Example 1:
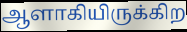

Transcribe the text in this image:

ஆளாகியிருக்கிற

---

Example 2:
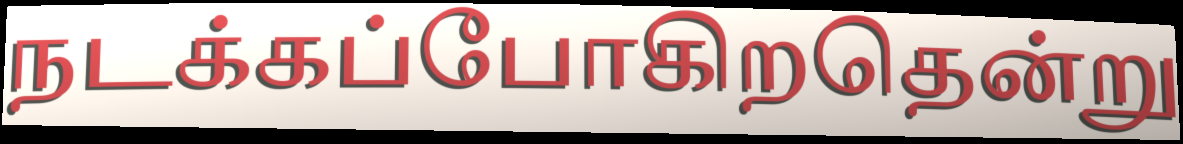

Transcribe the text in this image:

நடக்கப்போகிறதென்று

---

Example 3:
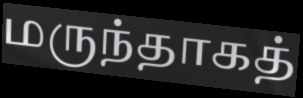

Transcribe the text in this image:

மருந்தாகத்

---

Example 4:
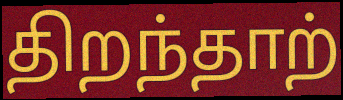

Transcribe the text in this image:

திறந்தாற்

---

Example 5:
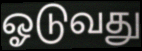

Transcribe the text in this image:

ஓடுவது